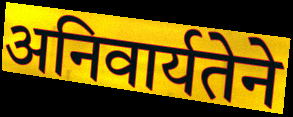
अनिवार्यतेने